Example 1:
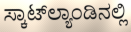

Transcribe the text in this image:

ಸ್ಕಾಟ್‌ಲ್ಯಾಂಡಿನಲ್ಲಿ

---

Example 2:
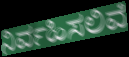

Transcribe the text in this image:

ನಿರ್ವಹಿಸಲಿವೆ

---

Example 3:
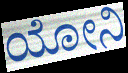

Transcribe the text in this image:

ಯೋನಿ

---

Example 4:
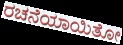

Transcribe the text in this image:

ರಚನೆಯಾಯಿತೋ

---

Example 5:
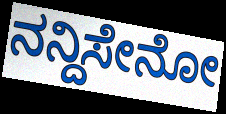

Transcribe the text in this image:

ನನ್ದಿಸೇನೋ